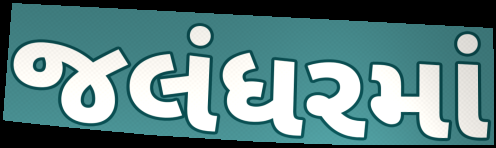
જલંધરમાં